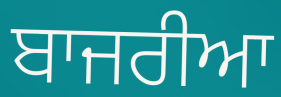
ਬਾਜਰੀਆ